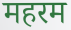
महरम